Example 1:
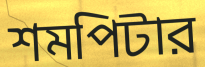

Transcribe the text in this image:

শমপিটার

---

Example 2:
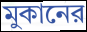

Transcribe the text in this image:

মুকানের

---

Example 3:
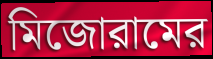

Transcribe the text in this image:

মিজোরামের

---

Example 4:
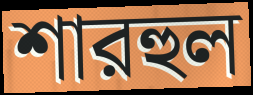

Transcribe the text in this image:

শারহুল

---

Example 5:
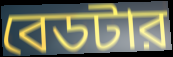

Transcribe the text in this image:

বেডটার